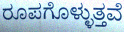
ರೂಪಗೊಳ್ಳುತ್ತವೆ